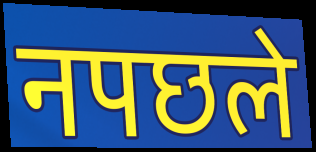
नपछले